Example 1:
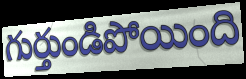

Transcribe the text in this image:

గుర్తుండిపోయింది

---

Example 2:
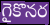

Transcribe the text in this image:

గైకొనర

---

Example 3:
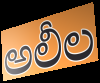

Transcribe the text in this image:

అలీల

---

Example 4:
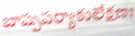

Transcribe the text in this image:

బాష్పపర్యాకులేక్షణః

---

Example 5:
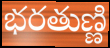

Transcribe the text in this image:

భరతుణ్ణి